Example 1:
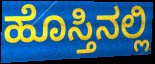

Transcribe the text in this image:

ಹೊಸ್ತಿನಲ್ಲಿ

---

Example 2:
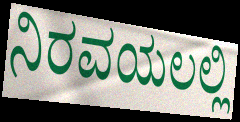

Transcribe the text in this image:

ನಿರವಯಲಲ್ಲಿ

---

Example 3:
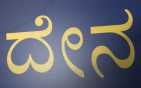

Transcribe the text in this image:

ದೇನ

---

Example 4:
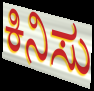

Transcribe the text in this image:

ಕಿನಿಸು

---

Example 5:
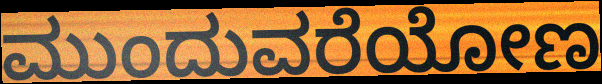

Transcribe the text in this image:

ಮುಂದುವರೆಯೋಣ